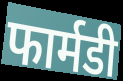
फार्मडी